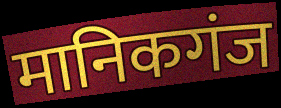
मानिकगंज